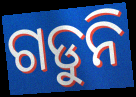
ଗଡୁନି